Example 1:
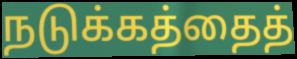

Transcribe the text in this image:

நடுக்கத்தைத்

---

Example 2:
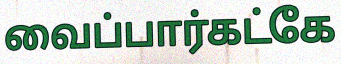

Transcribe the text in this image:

வைப்பார்கட்கே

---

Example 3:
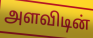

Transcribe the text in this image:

அளவிடின்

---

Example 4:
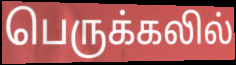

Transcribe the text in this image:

பெருக்கலில்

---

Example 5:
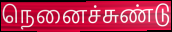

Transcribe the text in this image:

நெனைச்சுண்டு